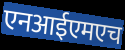
एनआईएमएच